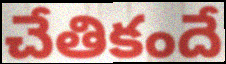
చేతికందే